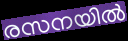
രസനയിൽ